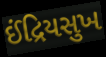
ઈંદ્રિયસુખ